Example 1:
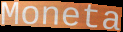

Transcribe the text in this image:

Moneta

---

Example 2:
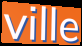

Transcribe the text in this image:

ville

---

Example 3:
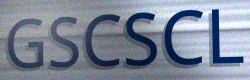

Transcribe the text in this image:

GSCSCL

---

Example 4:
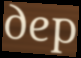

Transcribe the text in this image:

dep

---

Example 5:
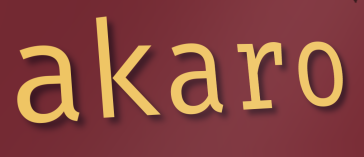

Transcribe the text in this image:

akaro